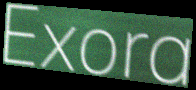
Exora